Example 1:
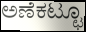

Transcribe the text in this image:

ಅಣೆಕಟ್ಟೂ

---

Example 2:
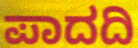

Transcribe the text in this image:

ಪಾದದಿ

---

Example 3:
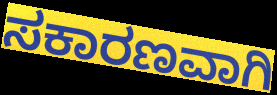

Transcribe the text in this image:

ಸಕಾರಣವಾಗಿ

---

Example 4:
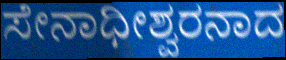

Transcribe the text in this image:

ಸೇನಾಧೀಶ್ವರನಾದ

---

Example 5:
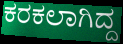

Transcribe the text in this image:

ಕರಕಲಾಗಿದ್ದ